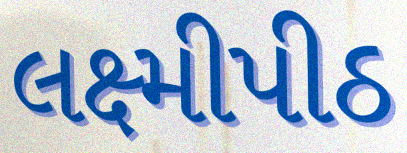
લક્ષ્મીપીઠ